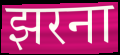
झरना